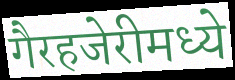
गैरहजेरीमध्ये